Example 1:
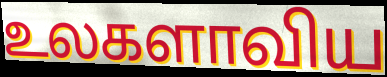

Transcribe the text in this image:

உலகளாவிய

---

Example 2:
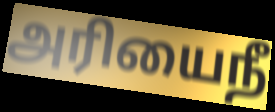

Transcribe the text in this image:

அரியைநீ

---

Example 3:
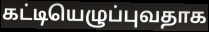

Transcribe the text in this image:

கட்டியெழுப்புவதாக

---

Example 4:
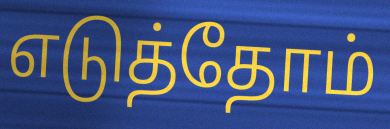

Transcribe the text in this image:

எடுத்தோம்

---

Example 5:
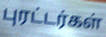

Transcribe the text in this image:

புரட்டர்கள்